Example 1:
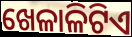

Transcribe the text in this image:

ଖେଳାଳିଟିଏ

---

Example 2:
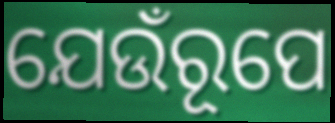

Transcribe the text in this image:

ଯେଉଁରୂପେ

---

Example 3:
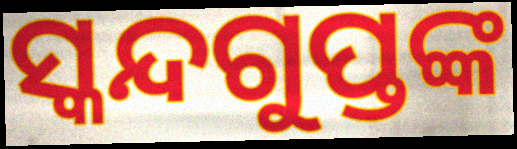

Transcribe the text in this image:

ସ୍କନ୍ଦଗୁପ୍ତଙ୍କ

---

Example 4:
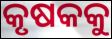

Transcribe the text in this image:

କୃଷକକୁ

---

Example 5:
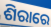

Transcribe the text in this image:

ଶିରାରେ